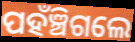
ପହଁଞ୍ଚିଗଲେ